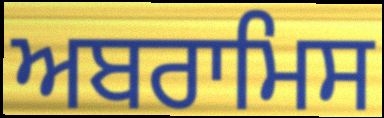
ਅਬਰਾਮਿਸ